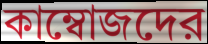
কাম্বোজদের